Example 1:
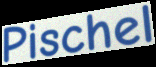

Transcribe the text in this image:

Pischel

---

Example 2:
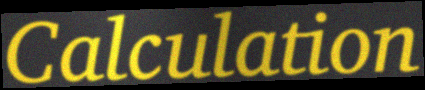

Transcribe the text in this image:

Calculation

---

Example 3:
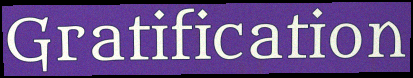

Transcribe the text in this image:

Gratification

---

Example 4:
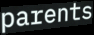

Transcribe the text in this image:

parents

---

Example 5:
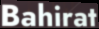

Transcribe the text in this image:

Bahirat